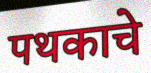
पथकाचे